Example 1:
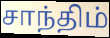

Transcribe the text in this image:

சாந்திம்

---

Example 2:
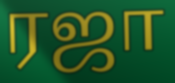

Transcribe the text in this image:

ரஜா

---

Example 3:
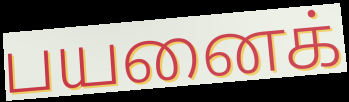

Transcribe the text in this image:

பயனைக்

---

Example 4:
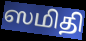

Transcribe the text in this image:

ஸமிதி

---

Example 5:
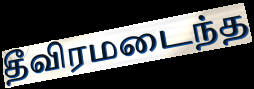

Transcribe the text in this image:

தீவிரமடைந்த